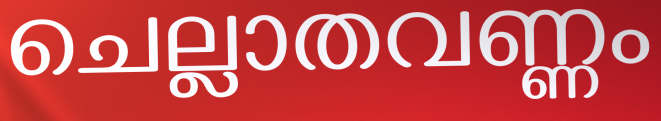
ചെല്ലാതവണ്ണം